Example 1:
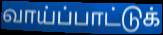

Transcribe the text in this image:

வாய்ப்பாட்டுக்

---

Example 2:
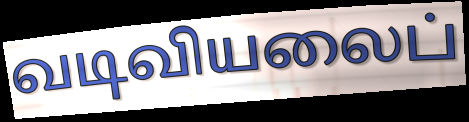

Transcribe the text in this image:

வடிவியலைப்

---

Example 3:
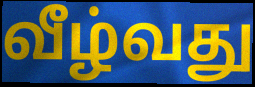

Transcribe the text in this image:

வீழ்வது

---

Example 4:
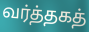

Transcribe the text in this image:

வர்த்தகத்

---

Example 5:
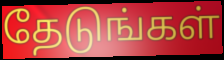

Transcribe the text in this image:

தேடுங்கள்